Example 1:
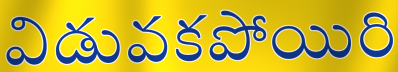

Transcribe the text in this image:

విడువకపోయిరి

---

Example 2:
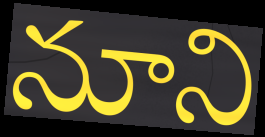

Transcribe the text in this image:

నూని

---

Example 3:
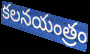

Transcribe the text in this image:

కలనయంత్రం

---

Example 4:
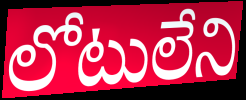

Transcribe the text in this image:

లోటులేని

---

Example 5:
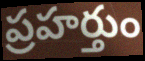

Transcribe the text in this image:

ప్రహర్తుం